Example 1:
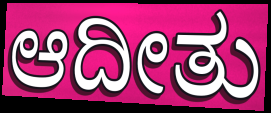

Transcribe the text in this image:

ಆದೀತು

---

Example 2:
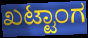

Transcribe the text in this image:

ಖಟ್ಟಾಂಗ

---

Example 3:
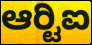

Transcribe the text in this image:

ಆರ್‍ಟಿಐ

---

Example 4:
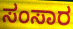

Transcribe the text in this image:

ಸಂಸಾರ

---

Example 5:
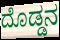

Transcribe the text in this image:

ದೊಡ್ಡನ